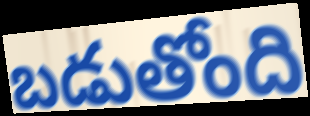
బడుతోంది